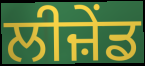
ਲੀਜ਼ੇਂਡ